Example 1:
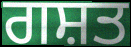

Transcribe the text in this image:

ਗਸ਼ਤ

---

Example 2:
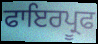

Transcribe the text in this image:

ਫਾਇਰਪ੍ਰੂਫ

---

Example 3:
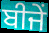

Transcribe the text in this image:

ਬੀਜੇਂ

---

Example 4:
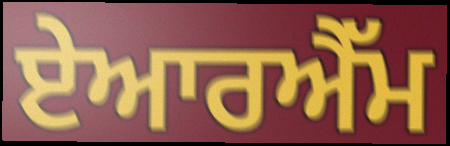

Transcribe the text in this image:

ਏਆਰਐੱਮ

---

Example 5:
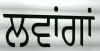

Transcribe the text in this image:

ਲਵਾਂਗਾਂ